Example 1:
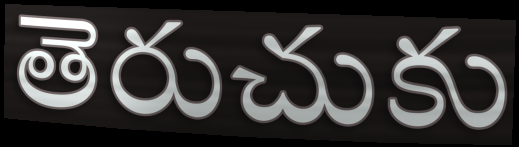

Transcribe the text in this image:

తెరుచుకు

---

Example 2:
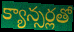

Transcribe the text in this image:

క్యాన్సర్లతో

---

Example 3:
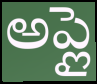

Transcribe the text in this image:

అప్లై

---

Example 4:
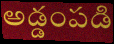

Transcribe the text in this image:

అడ్డంపడి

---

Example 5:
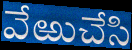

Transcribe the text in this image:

వేఱుచేసి